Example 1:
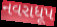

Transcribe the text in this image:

નવરાધૂપ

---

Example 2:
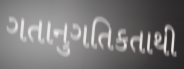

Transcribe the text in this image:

ગતાનુગતિકતાથી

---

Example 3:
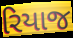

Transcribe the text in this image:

રિયાજ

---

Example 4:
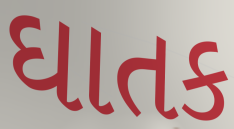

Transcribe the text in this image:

ઘાતક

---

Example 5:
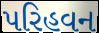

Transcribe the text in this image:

પરિહવન